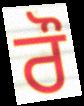
ਰੌ